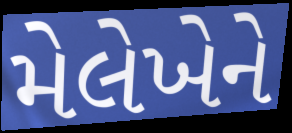
મેલેખેને